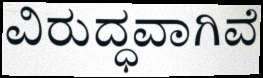
ವಿರುದ್ಧವಾಗಿವೆ